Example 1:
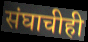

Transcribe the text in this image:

संघाचीही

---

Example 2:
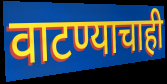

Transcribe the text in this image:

वाटण्याचाही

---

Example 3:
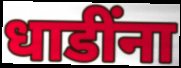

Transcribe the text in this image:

धाडींना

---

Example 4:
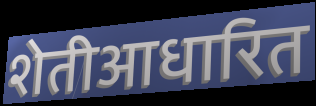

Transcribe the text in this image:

शेतीआधारित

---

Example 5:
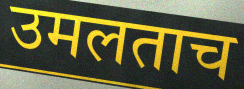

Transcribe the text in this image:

उमलताच